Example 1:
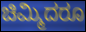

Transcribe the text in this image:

ಚಿಮ್ಮಿದರೂ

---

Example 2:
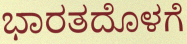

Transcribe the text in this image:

ಭಾರತದೊಳಗೆ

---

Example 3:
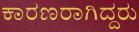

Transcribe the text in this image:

ಕಾರಣರಾಗಿದ್ದರು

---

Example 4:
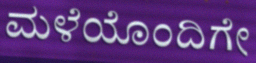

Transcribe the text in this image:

ಮಳೆಯೊಂದಿಗೇ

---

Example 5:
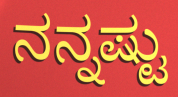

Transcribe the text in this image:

ನನ್ನಷ್ಟು